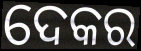
ଦେକର